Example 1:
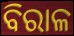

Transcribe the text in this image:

ବିରାଳ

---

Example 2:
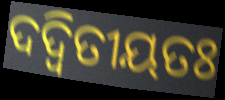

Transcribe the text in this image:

ଦଦ୍ୱିତୀୟତଃ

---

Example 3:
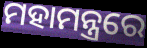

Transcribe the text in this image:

ମହାମନ୍ତ୍ରରେ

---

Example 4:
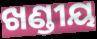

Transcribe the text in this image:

ଖଣ୍ଡୀୟ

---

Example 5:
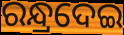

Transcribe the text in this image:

ରନ୍ଧ୍ରଦେଇ